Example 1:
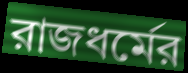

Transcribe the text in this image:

রাজধর্মের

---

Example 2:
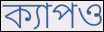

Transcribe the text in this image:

ক্যাপও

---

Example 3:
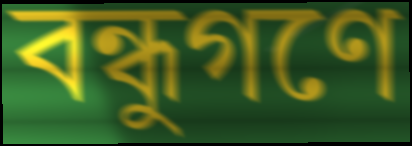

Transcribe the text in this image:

বন্ধুগণে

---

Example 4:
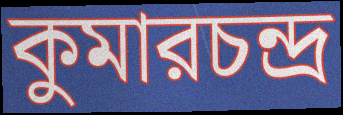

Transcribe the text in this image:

কুমারচন্দ্র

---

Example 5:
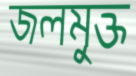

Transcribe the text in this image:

জলমুক্ত